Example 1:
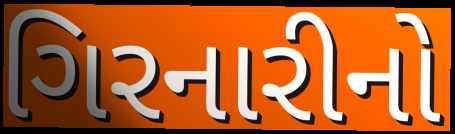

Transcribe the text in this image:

ગિરનારીનો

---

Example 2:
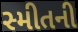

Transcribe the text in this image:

સ્મીતની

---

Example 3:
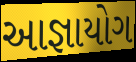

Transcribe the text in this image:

આજ્ઞાયોગ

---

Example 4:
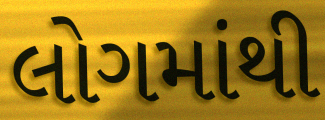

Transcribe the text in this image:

લોગમાંથી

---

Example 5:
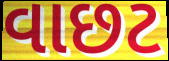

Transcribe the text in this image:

વાછટ